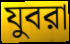
যুবরা